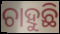
ଚାହୁଛି